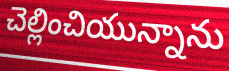
చెల్లించియున్నాను